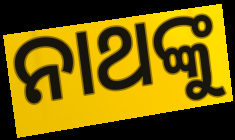
ନାଥଙ୍କୁ